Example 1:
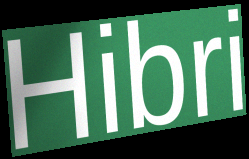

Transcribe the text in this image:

Hibri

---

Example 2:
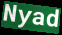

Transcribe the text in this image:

Nyad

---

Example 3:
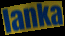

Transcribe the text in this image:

lanka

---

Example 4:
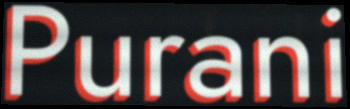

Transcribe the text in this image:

Purani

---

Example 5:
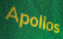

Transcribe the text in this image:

Apollos